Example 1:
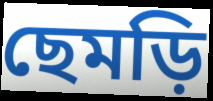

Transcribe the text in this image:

ছেমড়ি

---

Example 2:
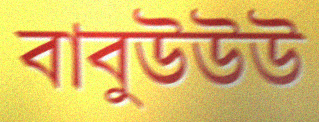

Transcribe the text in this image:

বাবুউউউ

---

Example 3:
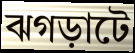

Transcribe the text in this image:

ঝগড়াটে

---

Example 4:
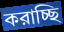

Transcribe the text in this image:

করাচ্ছি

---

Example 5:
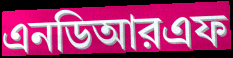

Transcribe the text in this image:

এনডিআরএফ